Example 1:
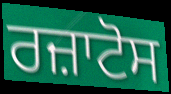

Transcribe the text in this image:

ਰਜ਼ਾਟੋਸ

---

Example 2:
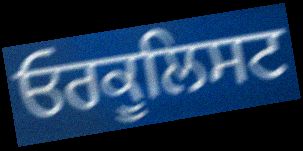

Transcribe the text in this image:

ਓਰਕੂਲਿਸਟ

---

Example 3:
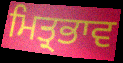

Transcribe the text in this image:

ਮਿਤ੍ਰਭਾਵ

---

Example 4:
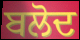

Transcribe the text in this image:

ਬਲੋਦ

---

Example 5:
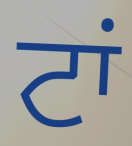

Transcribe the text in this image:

ਟਾਂ